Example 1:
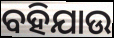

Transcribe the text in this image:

ବହିଯାଉ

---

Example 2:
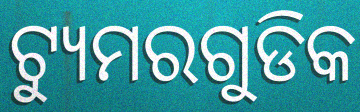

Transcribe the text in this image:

ଟ୍ୟୁମରଗୁଡିକ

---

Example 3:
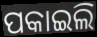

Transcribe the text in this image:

ପକାଇଲି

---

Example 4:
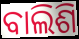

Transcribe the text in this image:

ବାଲିଶି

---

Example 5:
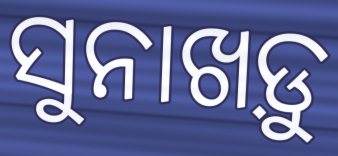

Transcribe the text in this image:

ସୁନାଖଡ଼ୁ